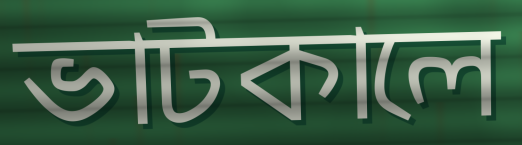
ভাটকালে